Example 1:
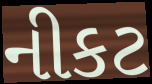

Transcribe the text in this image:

નીકટ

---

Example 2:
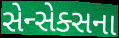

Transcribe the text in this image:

સેન્સેક્સના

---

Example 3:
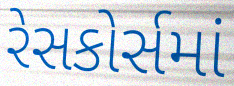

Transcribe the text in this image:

રેસકોર્સમાં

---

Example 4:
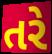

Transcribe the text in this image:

તરે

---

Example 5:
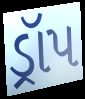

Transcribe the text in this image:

ડ્રૉપ